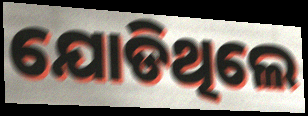
ଯୋଡିଥିଲେ